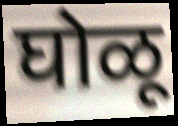
घोळू